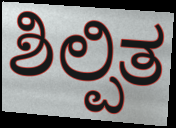
ಶಿಲ್ಪಿತ